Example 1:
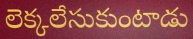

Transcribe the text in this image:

లెక్కలేసుకుంటాడు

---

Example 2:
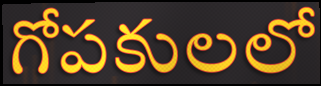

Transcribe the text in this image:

గోపకులలో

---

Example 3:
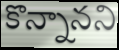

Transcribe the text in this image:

కొన్నానని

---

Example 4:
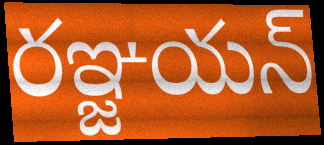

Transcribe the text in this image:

రఞ్జయన్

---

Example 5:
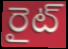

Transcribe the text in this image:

రైట్